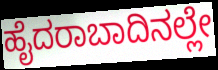
ಹೈದರಾಬಾದಿನಲ್ಲೇ